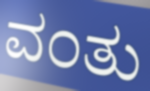
ವಂತು